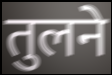
तुलने